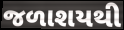
જળાશયથી